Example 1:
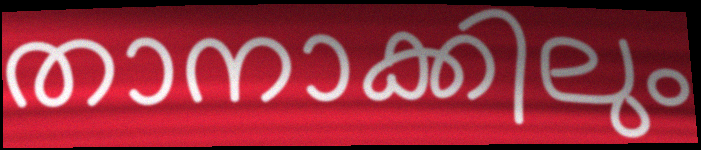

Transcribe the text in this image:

താനാക്കിലും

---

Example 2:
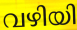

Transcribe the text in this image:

വഴിയി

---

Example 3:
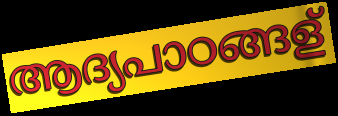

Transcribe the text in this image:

ആദ്യപാഠങ്ങള്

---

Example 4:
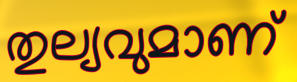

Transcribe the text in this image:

തുല്യവുമാണ്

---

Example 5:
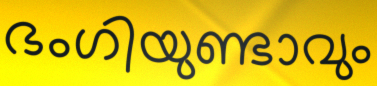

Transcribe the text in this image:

ഭംഗിയുണ്ടാവും